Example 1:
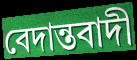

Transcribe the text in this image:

বেদান্তবাদী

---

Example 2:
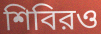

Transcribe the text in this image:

শিবিরও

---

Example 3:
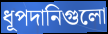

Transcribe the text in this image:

ধূপদানিগুলো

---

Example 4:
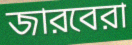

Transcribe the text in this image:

জারবেরা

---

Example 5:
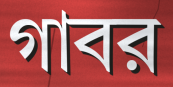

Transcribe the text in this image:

গাবর